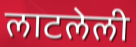
लाटलेली